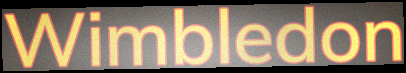
Wimbledon